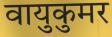
वायुकुमर